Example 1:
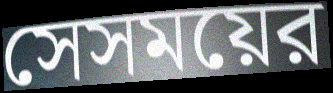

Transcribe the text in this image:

সেসময়ের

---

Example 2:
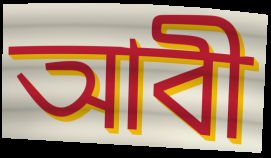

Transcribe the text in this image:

আবী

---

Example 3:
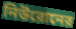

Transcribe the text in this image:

নিউরোনের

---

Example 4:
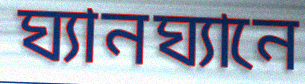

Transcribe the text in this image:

ঘ্যানঘ্যানে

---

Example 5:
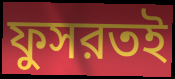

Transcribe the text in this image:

ফুসরতই